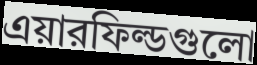
এয়ারফিল্ডগুলো